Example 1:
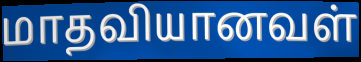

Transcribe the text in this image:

மாதவியானவள்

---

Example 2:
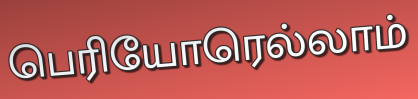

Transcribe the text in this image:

பெரியோரெல்லாம்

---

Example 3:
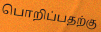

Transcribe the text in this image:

பொறிப்பதற்கு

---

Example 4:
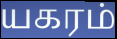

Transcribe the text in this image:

யகரம்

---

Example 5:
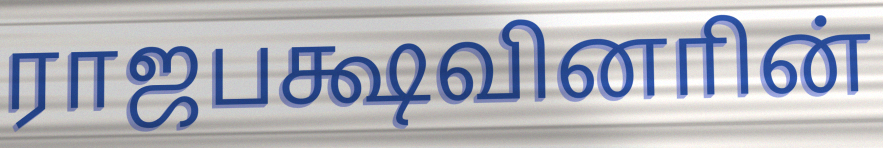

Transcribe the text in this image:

ராஜபக்ஷவினரின்